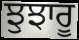
ਝੁਝਾਰੂ